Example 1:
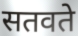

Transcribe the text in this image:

सतवते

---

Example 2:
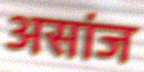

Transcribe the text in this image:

असांज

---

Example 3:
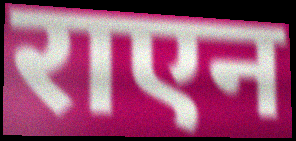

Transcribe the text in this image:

राएन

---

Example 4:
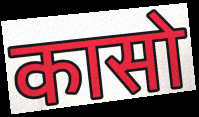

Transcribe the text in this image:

कासो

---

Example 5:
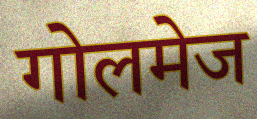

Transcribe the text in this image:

गोलमेज